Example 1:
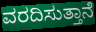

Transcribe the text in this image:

ವರದಿಸುತ್ತಾನೆ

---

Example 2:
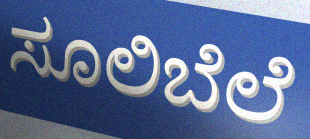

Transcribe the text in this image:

ಸೂಲಿಬೆಲೆ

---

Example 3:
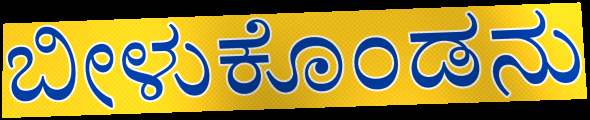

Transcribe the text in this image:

ಬೀಳುಕೊಂಡನು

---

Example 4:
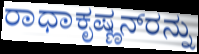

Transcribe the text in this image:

ರಾಧಾಕೃಷ್ಣನ್‌ರನ್ನು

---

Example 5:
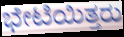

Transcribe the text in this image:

ಭೇಟಿಯಿತ್ತರು